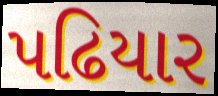
પઢિયાર